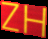
ZH